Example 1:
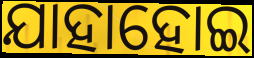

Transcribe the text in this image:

ଯାହାହୋଇ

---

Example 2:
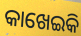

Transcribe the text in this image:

କାଖେଇକି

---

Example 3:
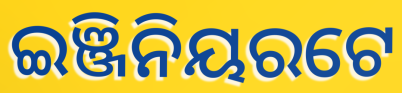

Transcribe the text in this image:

ଇଞ୍ଜିନିୟରଟେ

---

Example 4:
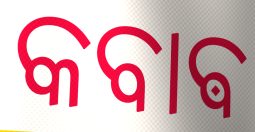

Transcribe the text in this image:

କବାଵ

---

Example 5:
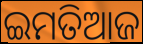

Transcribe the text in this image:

ଇମତିଆଜ